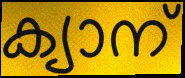
ക്യാന്